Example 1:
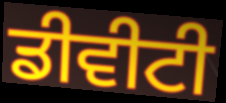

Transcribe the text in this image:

ਡੀਵੀਟੀ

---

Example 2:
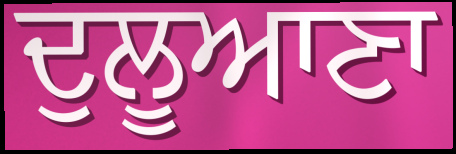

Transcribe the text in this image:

ਦੁਲੂਆਣਾ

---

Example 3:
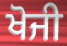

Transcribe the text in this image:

ਖੋਜੀ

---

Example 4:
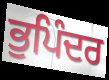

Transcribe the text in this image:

ਭੁਪਿੰਦਰ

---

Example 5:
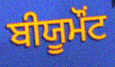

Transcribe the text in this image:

ਬੀਯੂਮੌਂਟ